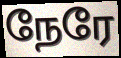
நேரே